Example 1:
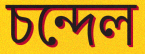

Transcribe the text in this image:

চন্দেল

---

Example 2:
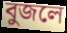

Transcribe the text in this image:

বুজলে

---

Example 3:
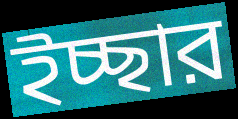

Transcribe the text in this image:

ইচ্ছার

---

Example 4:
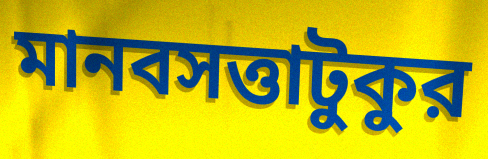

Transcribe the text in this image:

মানবসত্তাটুকুর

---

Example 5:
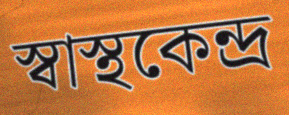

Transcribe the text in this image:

স্বাস্থকেন্দ্র